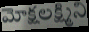
మోక్షలక్ష్మిని